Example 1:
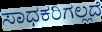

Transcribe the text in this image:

ಸಾಧಕರಿಗಲ್ಲದೆ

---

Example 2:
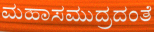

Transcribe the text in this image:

ಮಹಾಸಮುದ್ರದಂತೆ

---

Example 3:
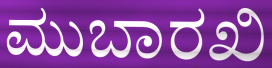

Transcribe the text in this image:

ಮುಬಾರಖಿ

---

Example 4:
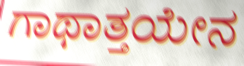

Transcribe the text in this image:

ಗಾಥಾತ್ತಯೇನ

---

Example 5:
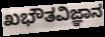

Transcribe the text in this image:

ಖಭೌತವಿಜ್ಞಾನ